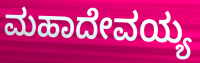
ಮಹಾದೇವಯ್ಯ